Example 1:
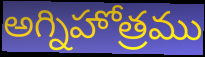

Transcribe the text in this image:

అగ్నిహోత్రము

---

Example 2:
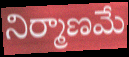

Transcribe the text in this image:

నిర్మాణమే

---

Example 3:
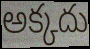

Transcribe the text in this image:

అక్కదు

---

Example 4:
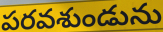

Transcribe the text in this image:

పరవశుండును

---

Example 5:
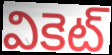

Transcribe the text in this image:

వికెట్